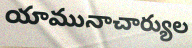
యామునాచార్యుల